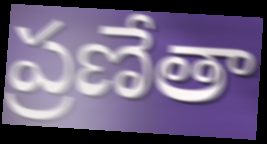
ప్రణేతా